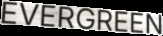
EVERGREEN